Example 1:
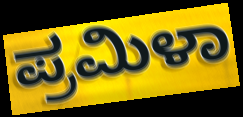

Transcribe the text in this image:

ಪ್ರಮಿಳಾ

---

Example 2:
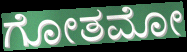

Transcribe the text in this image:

ಗೋತಮೋ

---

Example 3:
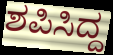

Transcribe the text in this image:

ಶಪಿಸಿದ್ದ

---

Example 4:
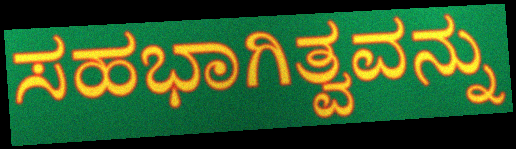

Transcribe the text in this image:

ಸಹಭಾಗಿತ್ವವನ್ನು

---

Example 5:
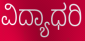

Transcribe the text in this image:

ವಿದ್ಯಾಧರಿ